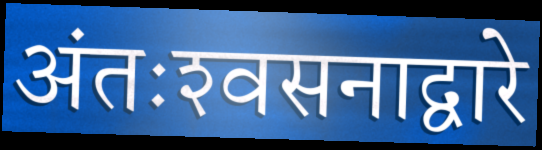
अंतःश्वसनाद्वारे